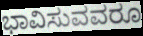
ಭಾವಿಸುವವರೂ